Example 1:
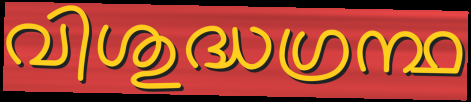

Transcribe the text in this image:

വിശുദ്ധഗ്രന്ഥ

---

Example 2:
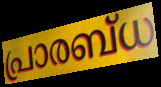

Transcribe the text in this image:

പ്രാരബ്ധ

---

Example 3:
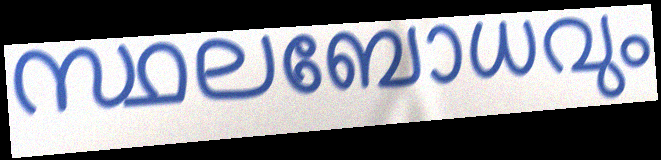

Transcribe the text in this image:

സ്ഥലബോധവും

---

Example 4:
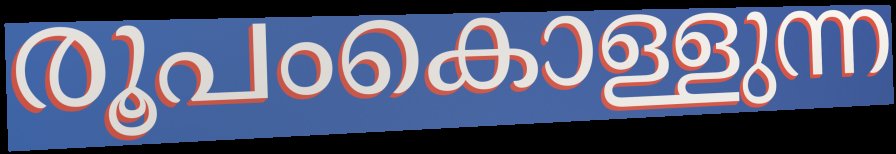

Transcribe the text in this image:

രൂപംകൊള്ളുന്ന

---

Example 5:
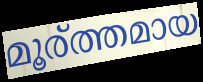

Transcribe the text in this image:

മൂര്ത്തമായ